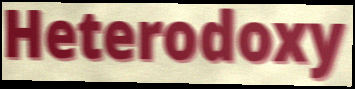
Heterodoxy